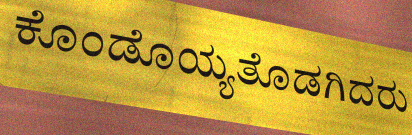
ಕೊಂಡೊಯ್ಯತೊಡಗಿದರು